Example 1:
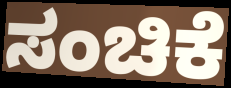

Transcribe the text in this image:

ಸಂಚಿಕೆ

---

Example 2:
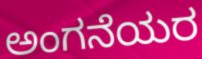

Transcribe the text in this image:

ಅಂಗನೆಯರ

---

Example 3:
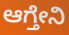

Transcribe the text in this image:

ಆಗ್ತೇನಿ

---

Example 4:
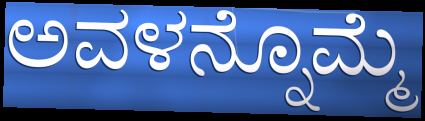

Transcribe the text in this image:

ಅವಳನ್ನೊಮ್ಮೆ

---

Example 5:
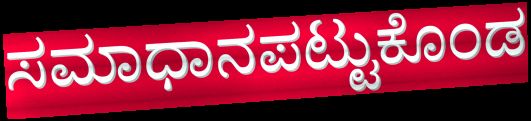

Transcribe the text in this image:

ಸಮಾಧಾನಪಟ್ಟುಕೊಂಡ